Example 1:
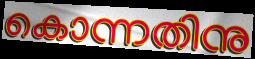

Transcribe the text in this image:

കൊന്നതിനു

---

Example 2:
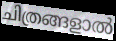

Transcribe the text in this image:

ചിത്രങ്ങളാൽ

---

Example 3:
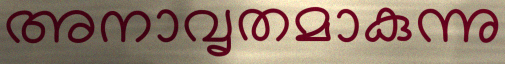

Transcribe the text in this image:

അനാവൃതമാകുന്നു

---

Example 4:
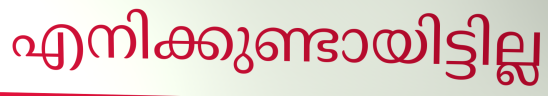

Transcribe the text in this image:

എനിക്കുണ്ടായിട്ടില്ല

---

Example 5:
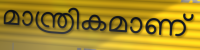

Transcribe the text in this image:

മാന്ത്രികമാണ്